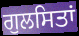
ਗੁਲਸਿਤਾਂ